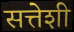
सत्तेशी